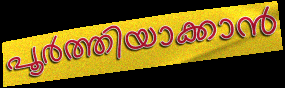
പൂർത്തിയാക്കാൻ